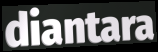
diantara